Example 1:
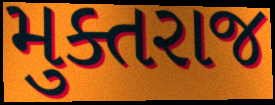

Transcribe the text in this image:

મુક્તરાજ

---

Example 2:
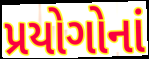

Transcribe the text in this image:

પ્રયોગોનાં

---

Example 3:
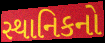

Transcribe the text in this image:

સ્થાનિકનો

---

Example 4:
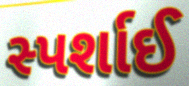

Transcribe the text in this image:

સ્પર્શાઈ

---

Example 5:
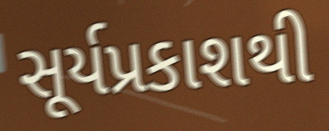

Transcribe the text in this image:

સૂર્યપ્રકાશથી